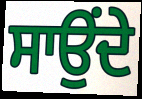
ਸਾਉਂਦੇ